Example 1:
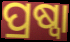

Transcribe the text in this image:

ପ୍ରଷ୍ୱା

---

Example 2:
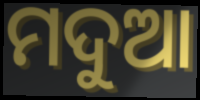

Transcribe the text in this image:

ମଦୁଆ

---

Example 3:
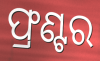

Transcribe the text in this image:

ଫ୍ରଣ୍ଟର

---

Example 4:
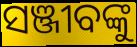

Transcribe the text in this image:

ସଞ୍ଜୀବଙ୍କୁ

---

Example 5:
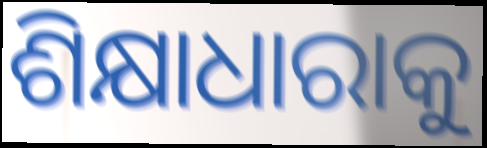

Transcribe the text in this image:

ଶିକ୍ଷାଧାରାକୁ